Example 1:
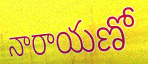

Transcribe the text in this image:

నారాయణో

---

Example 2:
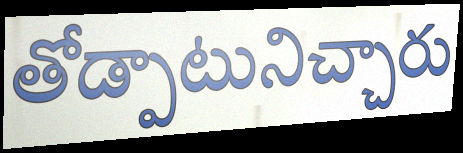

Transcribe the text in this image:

తోడ్పాటునిచ్చారు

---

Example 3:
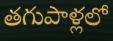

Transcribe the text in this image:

తగుపాళ్లలో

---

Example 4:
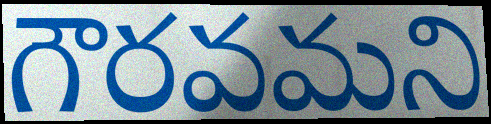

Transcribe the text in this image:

గౌరవమని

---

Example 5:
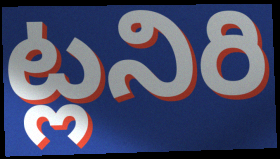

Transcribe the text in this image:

ట్లనిరి